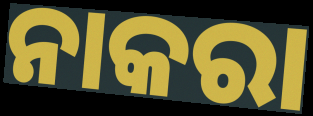
ନାକରା